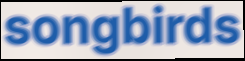
songbirds